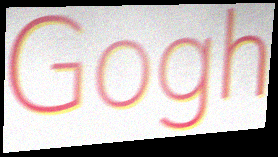
Gogh